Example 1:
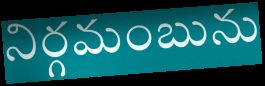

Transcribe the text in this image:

నిర్గమంబును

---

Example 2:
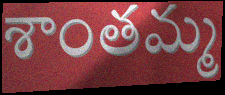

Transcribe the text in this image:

శాంతమ్మ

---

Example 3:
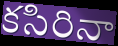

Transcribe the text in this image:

కసిరినా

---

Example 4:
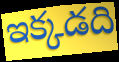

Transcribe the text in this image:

ఇక్కడది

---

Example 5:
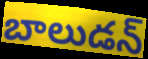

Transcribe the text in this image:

బాలుడన్